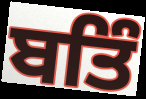
ਬਤਿੰ